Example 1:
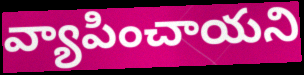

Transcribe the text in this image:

వ్యాపించాయని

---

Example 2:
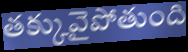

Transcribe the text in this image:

తక్కువైపోతుంది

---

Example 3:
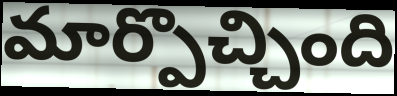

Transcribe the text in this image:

మార్పొచ్చింది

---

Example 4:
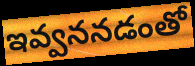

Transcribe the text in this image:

ఇవ్వననడంతో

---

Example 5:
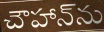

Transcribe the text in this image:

చౌహాన్‌ను